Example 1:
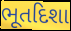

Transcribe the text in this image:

ભૂતદિશા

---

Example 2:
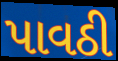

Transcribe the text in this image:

પાવઠી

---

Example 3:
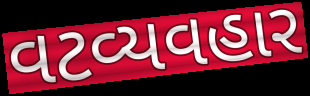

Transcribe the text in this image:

વટવ્યવહાર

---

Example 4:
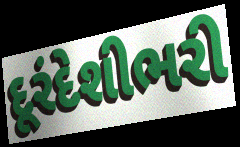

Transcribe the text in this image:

દૂરંદેશીભરી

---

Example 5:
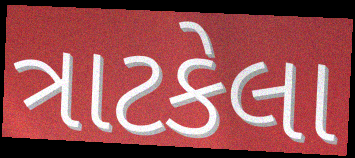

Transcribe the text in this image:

ત્રાટકેલા